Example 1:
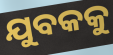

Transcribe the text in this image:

ଯୁବକକୁ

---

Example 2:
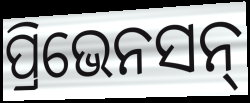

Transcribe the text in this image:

ପ୍ରିଭେନସନ୍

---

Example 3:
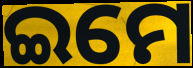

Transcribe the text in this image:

ଇମେ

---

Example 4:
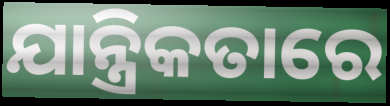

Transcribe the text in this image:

ଯାନ୍ତ୍ରିକତାରେ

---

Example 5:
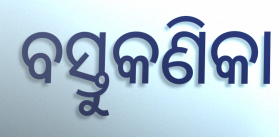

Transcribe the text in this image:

ବସ୍ତୁକଣିକା